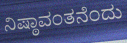
ನಿಷ್ಠಾವಂತನೆಂದು